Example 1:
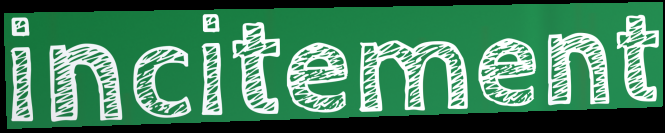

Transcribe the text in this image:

incitement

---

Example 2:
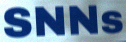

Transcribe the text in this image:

SNNs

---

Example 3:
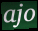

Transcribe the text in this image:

ajo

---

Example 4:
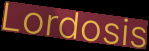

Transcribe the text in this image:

Lordosis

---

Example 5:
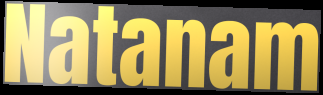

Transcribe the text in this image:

Natanam